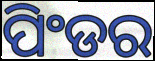
ପିଂଡର